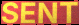
SENT